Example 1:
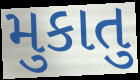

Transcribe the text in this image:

મુકાતુ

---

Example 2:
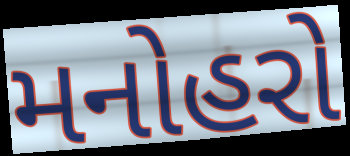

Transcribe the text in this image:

મનોહરો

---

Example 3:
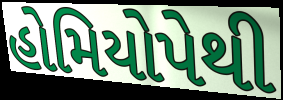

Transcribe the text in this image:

હોમિયોપેથી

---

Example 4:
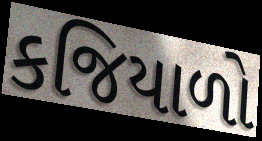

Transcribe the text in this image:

કજિયાળો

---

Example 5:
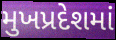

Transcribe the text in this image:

મુખપ્રદેશમાં